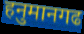
हनुमानगढ